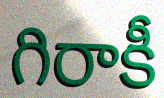
గిరాకీ